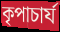
কৃপাচার্য